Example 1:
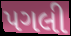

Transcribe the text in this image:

પગલી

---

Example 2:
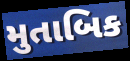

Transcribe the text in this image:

મુતાબિક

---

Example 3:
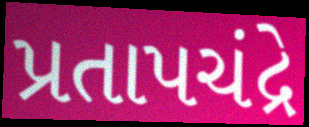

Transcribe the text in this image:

પ્રતાપચંદ્રે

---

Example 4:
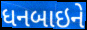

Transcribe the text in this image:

ધનબાઇને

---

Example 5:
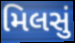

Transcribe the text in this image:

મિલસું